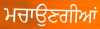
ਮਚਾਉਣਗੀਆਂ